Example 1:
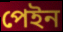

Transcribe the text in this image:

পেইন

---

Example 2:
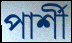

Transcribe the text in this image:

পার্শী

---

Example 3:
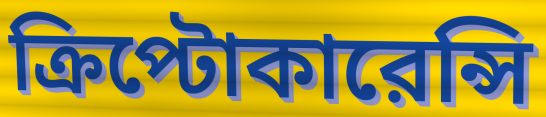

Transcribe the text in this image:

ক্রিপ্টোকারেন্সি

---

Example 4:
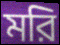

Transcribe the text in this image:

মরি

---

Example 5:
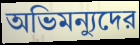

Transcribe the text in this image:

অভিমন্যুদের